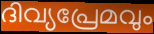
ദിവ്യപ്രേമവും